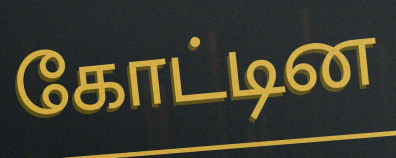
கோட்டின